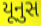
યૂનુસ